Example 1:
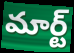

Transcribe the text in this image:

మార్ట్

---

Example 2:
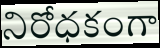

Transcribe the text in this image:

నిరోధకంగా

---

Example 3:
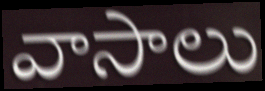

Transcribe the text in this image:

వాసాలు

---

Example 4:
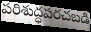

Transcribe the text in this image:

పరిశుద్ధపరచబడి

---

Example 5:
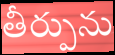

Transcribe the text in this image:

తీర్పును